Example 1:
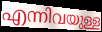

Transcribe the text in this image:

എന്നിവയുള്ള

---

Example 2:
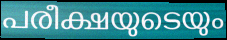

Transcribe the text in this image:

പരീക്ഷയുടെയും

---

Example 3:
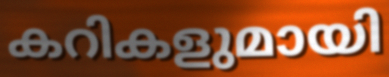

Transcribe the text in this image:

കറികളുമായി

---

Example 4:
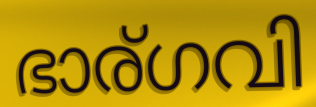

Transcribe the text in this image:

ഭാര്ഗവി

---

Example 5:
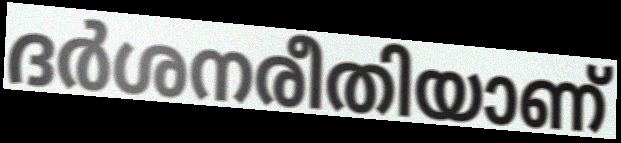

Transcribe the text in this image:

ദർശനരീതിയാണ്